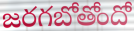
జరగబోతోందో